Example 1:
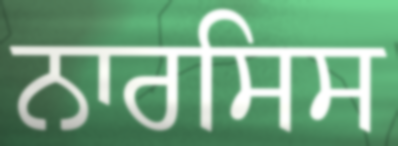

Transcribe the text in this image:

ਨਾਰਸਿਸ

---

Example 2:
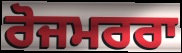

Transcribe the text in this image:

ਰੋਜਮਰਰਾ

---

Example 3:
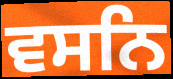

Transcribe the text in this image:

ਵਸਨਿ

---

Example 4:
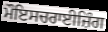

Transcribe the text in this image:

ਮੌਇਸਚਰਾਈਜ਼ਿੰਗ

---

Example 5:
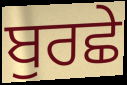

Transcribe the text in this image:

ਬੁਰਛੇ